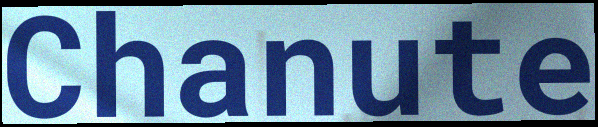
Chanute